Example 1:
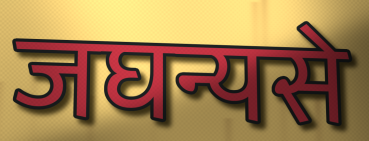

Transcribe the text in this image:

जघन्यसे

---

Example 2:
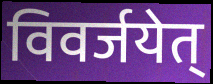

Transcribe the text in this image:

विवर्जयेत्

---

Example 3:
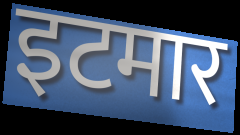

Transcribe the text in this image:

इटमार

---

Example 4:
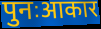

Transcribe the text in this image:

पुनःआकार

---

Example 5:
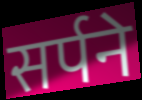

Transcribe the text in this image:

सर्पने